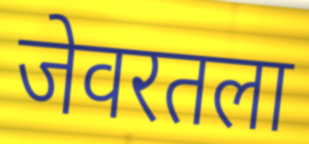
जेवरतला